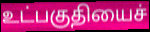
உட்பகுதியைச்